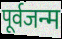
पूर्वजन्‍म